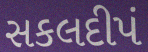
સકલદીપં